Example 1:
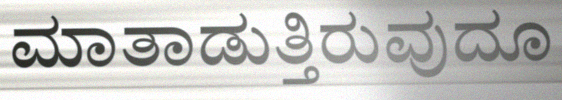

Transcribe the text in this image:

ಮಾತಾಡುತ್ತಿರುವುದೂ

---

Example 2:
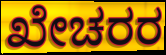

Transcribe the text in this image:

ಖೇಚರರ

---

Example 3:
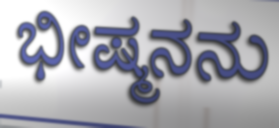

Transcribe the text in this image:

ಭೀಷ್ಮನನು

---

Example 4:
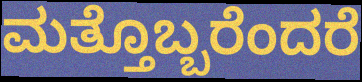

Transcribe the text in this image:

ಮತ್ತೊಬ್ಬರೆಂದರೆ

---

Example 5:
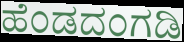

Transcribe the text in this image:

ಹೆಂಡದಂಗಡಿ